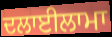
ਦਲਾਈਲਾਮਾ